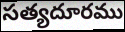
సత్యదూరము